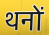
थनों